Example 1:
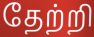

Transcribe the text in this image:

தேற்றி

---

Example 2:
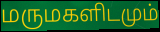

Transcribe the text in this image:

மருமகளிடமும்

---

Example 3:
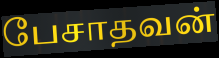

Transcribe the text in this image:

பேசாதவன்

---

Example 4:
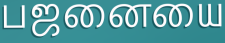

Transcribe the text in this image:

பஜனையை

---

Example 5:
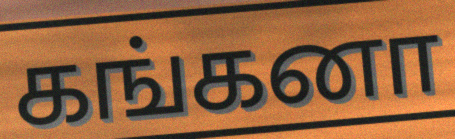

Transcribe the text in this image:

கங்கனா